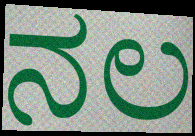
ನಲ